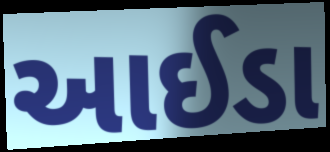
આઈડા